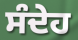
ਸੰਦੇਹ